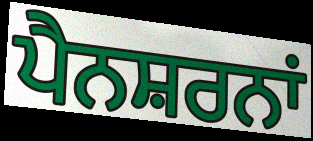
ਪੈਨਸ਼ਰਨਾਂ